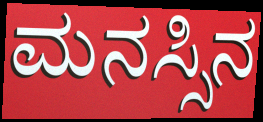
ಮನಸ್ಸಿನ